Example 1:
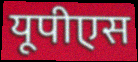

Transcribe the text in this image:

यूपीएस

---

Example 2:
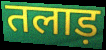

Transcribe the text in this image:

तलाड़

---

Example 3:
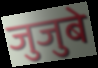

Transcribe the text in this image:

जुजुबे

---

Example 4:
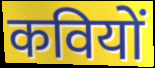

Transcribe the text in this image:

कवियों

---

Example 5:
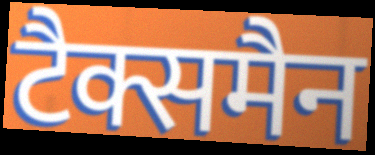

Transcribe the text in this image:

टैक्समैन